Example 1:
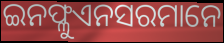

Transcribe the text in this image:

ଇନଫ୍ଳୁଏନସରମାନେ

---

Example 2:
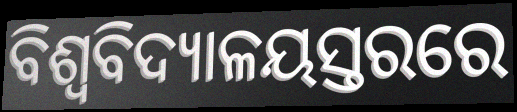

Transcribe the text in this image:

ବିଶ୍ୱବିଦ୍ୟାଳୟସ୍ତରରେ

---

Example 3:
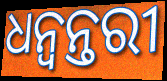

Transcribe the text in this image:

ଧନ୍ବନ୍ତରୀ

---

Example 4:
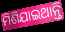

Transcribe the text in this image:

ମିଶିଯାଇଥାନ୍ତି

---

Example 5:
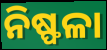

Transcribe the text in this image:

ନିଷ୍ଫଳା